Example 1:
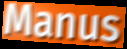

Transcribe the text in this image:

Manus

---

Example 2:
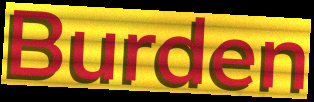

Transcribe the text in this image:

Burden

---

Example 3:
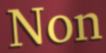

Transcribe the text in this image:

Non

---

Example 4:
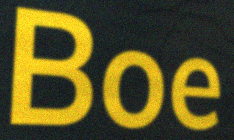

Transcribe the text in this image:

Boe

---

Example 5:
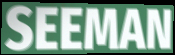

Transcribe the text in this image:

SEEMAN